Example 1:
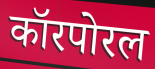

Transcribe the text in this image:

कॉरपोरल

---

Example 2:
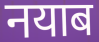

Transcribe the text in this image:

नयाब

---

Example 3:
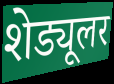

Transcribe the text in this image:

शेड्यूलर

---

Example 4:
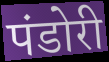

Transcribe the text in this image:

पंडोरी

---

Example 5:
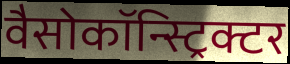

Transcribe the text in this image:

वैसोकॉन्स्ट्रिक्टर